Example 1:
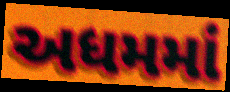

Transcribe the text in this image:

અધમમાં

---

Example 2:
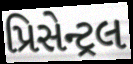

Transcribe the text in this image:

પ્રિસેન્ટ્રલ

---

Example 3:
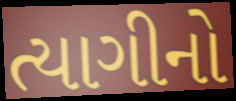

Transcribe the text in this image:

ત્યાગીનો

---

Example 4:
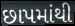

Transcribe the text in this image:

છાપમાંથી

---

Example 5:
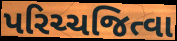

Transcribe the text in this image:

પરિચ્ચજિત્વા